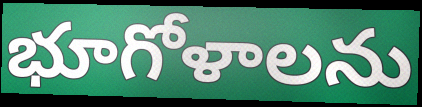
భూగోళాలను